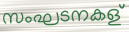
സംഘടനകള്